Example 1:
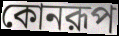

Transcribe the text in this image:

কোনরূপ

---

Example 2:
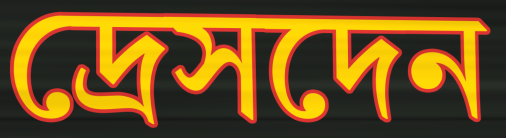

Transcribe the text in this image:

দ্রেসদেন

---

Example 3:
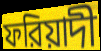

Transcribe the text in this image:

ফরিয়াদী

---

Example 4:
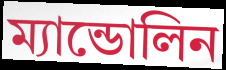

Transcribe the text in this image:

ম্যান্ডোলিন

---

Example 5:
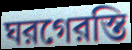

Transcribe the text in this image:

ঘরগেরস্তি